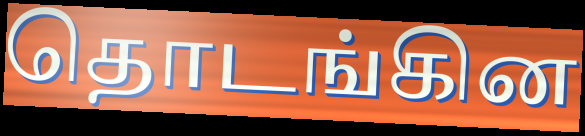
தொடங்கின